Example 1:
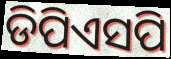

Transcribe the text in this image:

ଡିପିଏସପି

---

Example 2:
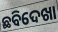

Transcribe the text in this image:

ଛବିଦେଖା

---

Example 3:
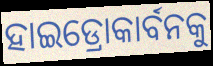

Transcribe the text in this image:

ହାଇଡ୍ରୋକାର୍ବନକୁ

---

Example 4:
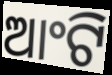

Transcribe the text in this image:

ଆଂଟି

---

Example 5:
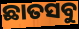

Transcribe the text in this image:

ଛାତସବୁ